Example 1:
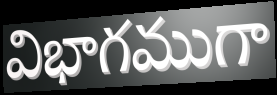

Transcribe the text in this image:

విభాగముగా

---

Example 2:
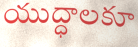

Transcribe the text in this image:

యుద్ధాలకూ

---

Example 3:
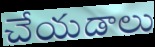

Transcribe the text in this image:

చేయడాలు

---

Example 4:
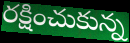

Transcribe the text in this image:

రక్షించుకున్న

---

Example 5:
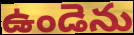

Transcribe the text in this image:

ఉండెను